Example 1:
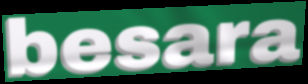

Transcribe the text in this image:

besara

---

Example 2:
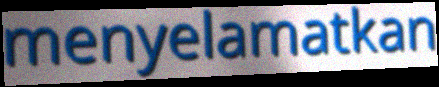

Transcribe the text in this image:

menyelamatkan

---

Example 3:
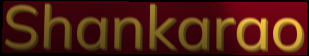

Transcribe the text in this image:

Shankarao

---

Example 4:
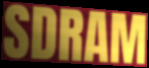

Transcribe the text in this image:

SDRAM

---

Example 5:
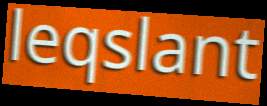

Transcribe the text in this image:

leqslant